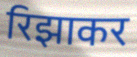
रिझाकर